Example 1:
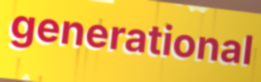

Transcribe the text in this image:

generational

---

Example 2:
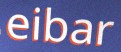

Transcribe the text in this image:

eibar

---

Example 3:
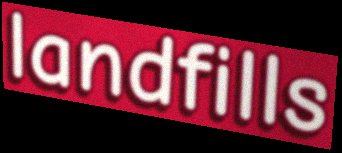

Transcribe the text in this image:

landfills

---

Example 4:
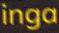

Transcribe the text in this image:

inga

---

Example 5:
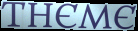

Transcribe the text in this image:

THEME